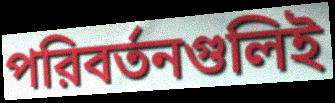
পরিবর্তনগুলিই